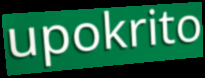
upokrito